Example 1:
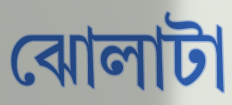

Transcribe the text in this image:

ঝোলাটা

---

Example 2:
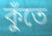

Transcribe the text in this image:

কুঁতে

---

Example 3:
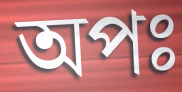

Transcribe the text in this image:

অপঃ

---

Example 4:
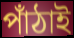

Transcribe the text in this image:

পাঁঠাই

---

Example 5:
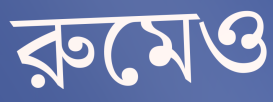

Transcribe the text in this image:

রুমেও